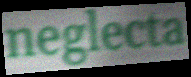
neglecta